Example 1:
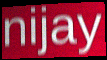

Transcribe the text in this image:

nijay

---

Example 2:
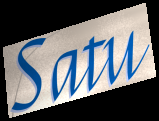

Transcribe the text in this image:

Satu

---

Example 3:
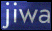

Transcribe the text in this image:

jiwa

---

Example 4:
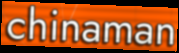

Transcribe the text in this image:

chinaman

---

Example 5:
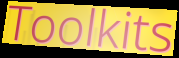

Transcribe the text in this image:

Toolkits